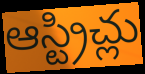
ఆస్ట్రిచ్లు